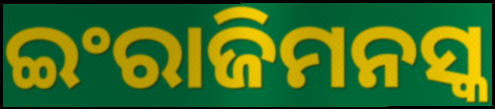
ଇଂରାଜିମନସ୍କ